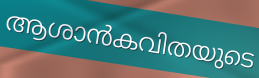
ആശാൻകവിതയുടെ